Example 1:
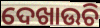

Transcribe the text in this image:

ଦେଖାଉଚି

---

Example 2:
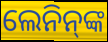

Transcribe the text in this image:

ଲେନିନ୍‌ଙ୍କ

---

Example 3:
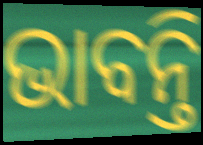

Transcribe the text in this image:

ଭାବନ୍ତି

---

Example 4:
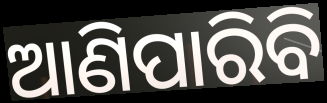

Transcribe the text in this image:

ଆଣିପାରିବି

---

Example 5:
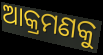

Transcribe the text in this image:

ଆକ୍ରମଣକୁ